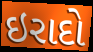
ઇરાદો